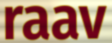
raav